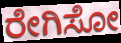
ರೇಗಿಸೋ